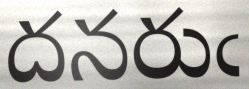
దనరుఁ